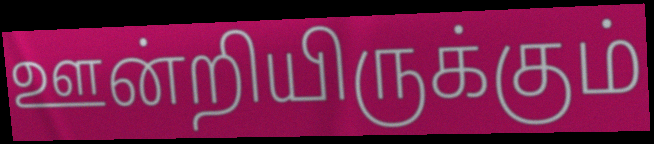
ஊன்றியிருக்கும்